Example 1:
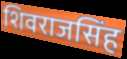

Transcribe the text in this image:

शिवराजसिंह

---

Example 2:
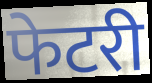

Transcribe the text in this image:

फेटरी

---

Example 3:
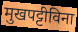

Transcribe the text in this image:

मुखपट्टीविना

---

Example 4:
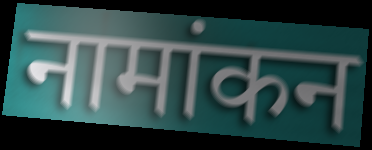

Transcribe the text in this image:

नामांकन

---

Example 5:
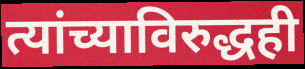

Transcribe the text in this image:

त्यांच्याविरुद्धही